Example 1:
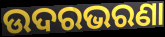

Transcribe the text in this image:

ଉଦରଭରଣା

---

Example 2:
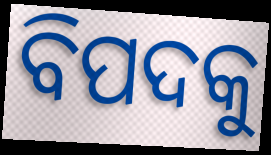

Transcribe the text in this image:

ବିପଦକୁ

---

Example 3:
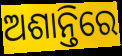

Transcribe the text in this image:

ଅଶାନ୍ତିରେ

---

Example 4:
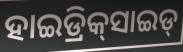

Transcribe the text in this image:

ହାଇଡ୍ରିକ୍‌ସାଇଡ୍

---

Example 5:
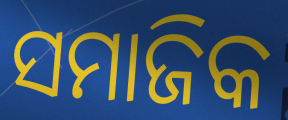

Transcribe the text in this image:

ସମାଜିକ